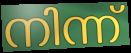
നിന്ന്